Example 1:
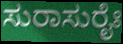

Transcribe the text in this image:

ಸುರಾಸುರೈಃ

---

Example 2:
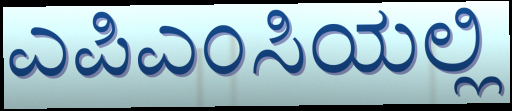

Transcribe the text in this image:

ಎಪಿಎಂಸಿಯಲ್ಲಿ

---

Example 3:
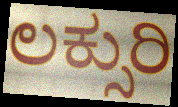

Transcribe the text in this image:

ಲಕ್ಸುರಿ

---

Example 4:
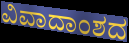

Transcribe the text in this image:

ವಿವಾದಾಂಶದ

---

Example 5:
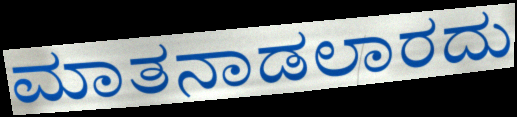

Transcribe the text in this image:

ಮಾತನಾಡಲಾರದು